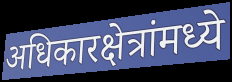
अधिकारक्षेत्रांमध्ये